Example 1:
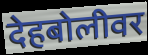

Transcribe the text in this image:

देहबोलीवर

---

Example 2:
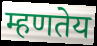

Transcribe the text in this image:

म्हणतेय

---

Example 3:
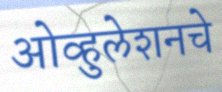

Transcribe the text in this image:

ओव्हुलेशनचे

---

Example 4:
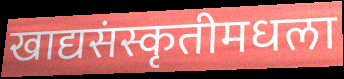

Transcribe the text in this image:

खाद्यसंस्कृतीमधला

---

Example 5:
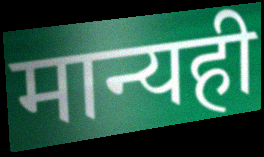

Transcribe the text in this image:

मान्यही